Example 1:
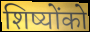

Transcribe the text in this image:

शिष्योंको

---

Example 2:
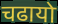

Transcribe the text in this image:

चढायो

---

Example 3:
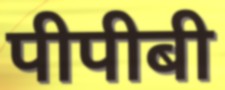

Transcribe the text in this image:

पीपीबी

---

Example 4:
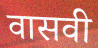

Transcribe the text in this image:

वासवी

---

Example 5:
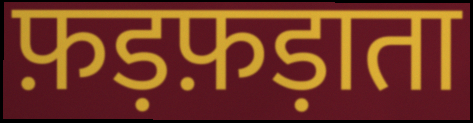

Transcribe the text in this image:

फ़ड़फ़ड़ाता